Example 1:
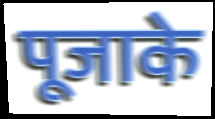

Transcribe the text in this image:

पूजाके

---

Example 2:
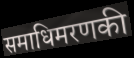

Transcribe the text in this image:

समाधिमरणकी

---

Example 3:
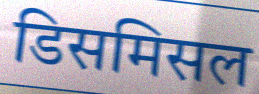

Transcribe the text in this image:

डिसमिसल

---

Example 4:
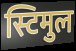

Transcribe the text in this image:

स्टिमुल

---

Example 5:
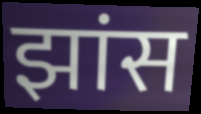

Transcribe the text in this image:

झांस